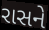
રાસને